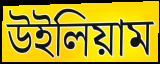
উইলিয়াম